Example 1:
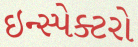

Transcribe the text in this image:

ઇન્સ્પેક્ટરો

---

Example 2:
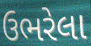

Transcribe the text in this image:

ઉભરેલા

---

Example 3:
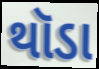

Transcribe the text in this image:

થૉડા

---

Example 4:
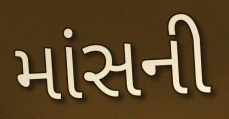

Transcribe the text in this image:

માંસની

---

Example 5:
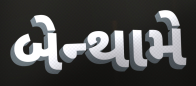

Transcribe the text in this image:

બેન્થામે